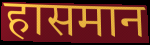
हासमान